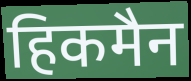
हिकमैन